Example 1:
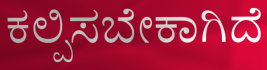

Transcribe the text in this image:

ಕಲ್ಪಿಸಬೇಕಾಗಿದೆ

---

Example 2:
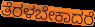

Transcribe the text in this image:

ತೆರಳಬೇಕಾದರೆ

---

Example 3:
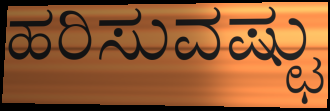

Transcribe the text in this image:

ಹರಿಸುವಷ್ಟು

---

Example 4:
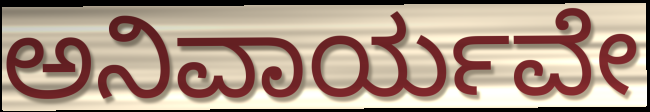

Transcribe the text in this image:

ಅನಿವಾರ್ಯವೇ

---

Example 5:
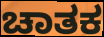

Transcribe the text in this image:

ಚಾತಕ